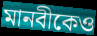
মানবীকেও